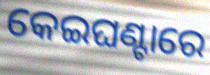
କେଇଘଣ୍ଟାରେ